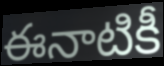
ఈనాటికీ